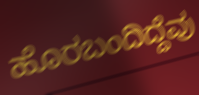
ಹೊರಬಂದಿದ್ದೆವು